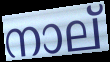
നാല്